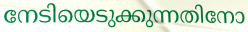
നേടിയെടുക്കുന്നതിനോ